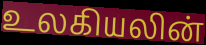
உலகியலின்